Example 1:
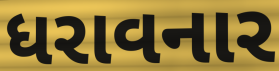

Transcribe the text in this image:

ધરાવનાર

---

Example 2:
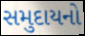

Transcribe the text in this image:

સમુદાયનો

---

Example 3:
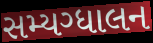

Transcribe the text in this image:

સમ્યગ્ધાલન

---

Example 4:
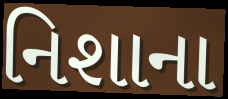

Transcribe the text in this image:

નિશાના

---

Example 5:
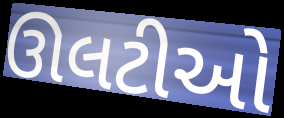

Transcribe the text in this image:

ઊલટીઓ